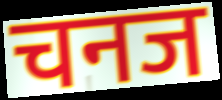
चनज